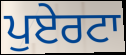
ਪੁਏਰਟਾ